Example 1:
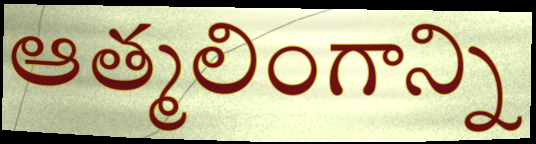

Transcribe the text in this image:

ఆత్మలింగాన్ని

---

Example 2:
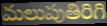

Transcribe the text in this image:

మలుపుతిరిగి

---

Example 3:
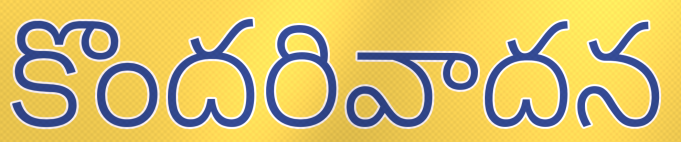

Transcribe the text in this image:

కొందరివాదన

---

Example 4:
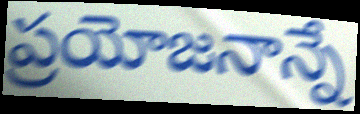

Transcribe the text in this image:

ప్రయోజనాన్నే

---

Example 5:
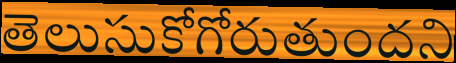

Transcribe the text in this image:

తెలుసుకోగోరుతుందని